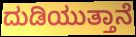
ದುಡಿಯುತ್ತಾನೆ